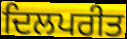
ਦਿਲਪਰੀਤ